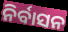
ନିର୍ବାସନ